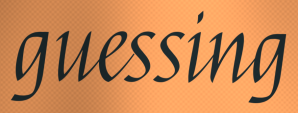
guessing